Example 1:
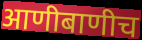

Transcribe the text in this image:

आणीबाणीच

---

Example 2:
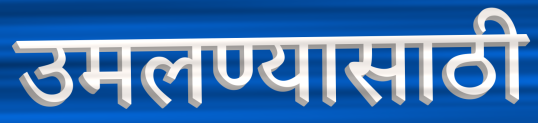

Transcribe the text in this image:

उमलण्यासाठी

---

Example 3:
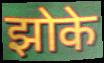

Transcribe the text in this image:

झोके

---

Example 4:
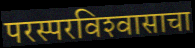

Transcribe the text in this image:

परस्परविश्वासाचा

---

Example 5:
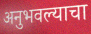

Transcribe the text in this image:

अनुभवल्याचा